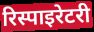
रिस्पाइरेटरी